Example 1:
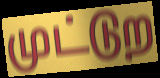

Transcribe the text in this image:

முட்டுற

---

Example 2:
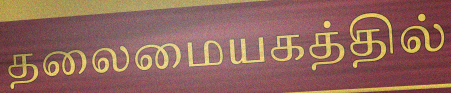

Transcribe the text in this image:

தலைமையகத்தில்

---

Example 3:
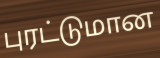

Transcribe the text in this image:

புரட்டுமான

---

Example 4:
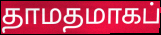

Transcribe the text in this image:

தாமதமாகப்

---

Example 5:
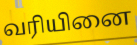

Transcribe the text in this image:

வரியினை